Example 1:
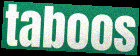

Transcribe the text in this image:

taboos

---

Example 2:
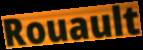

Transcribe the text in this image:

Rouault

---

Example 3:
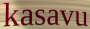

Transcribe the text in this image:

kasavu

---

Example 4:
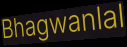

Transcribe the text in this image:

Bhagwanlal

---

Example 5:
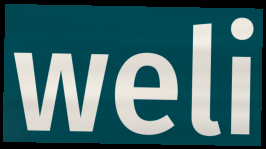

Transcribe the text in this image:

weli